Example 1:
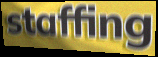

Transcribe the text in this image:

staffing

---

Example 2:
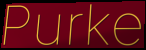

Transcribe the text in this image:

Purke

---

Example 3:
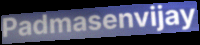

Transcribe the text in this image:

Padmasenvijay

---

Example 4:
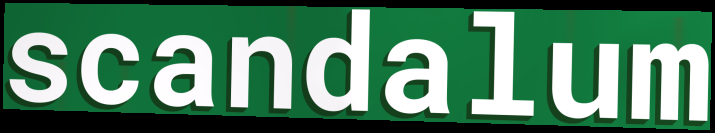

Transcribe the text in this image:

scandalum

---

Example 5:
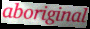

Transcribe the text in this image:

aboriginal